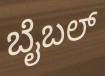
ಬೈಬಲ್